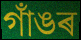
গাঁঙৰ